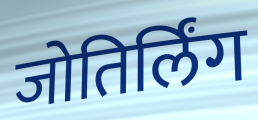
जोतिर्लिंग